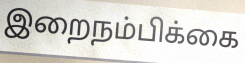
இறைநம்பிக்கை